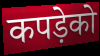
कपड़ेको